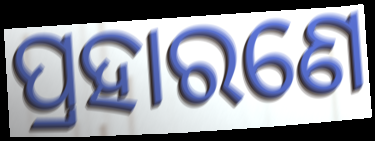
ପ୍ରହାରଣେ